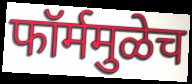
फॉर्ममुळेच